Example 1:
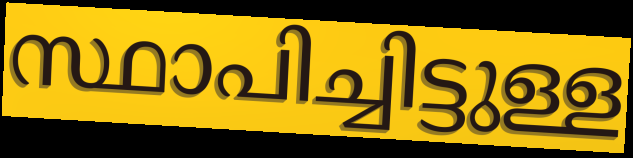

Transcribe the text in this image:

സ്ഥാപിച്ചിട്ടുള്ള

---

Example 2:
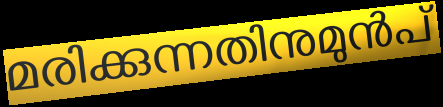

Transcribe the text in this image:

മരിക്കുന്നതിനുമുൻപ്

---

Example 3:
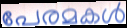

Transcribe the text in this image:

പേരമകൾ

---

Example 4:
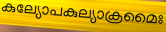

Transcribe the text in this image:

കുല്യോപകുല്യാക്രമൈഃ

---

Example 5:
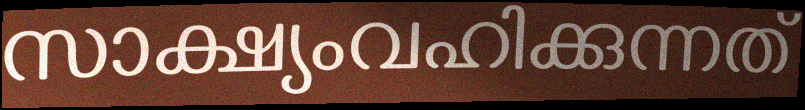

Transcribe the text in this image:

സാക്ഷ്യംവഹിക്കുന്നത്